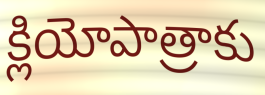
క్లియోపాత్రాకు